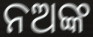
ନଅଙ୍କ